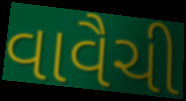
વાવૈચી